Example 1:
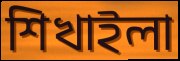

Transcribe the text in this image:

শিখাইলা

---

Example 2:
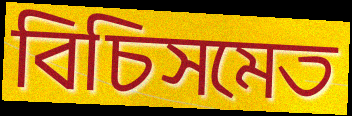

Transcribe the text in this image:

বিচিসমেত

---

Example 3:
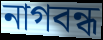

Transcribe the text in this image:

নাগবন্ধ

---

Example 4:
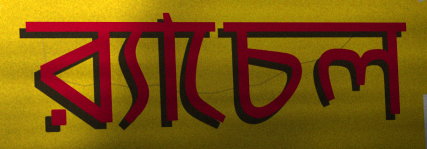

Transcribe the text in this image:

র‍্যাচেল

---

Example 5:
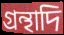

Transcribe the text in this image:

গ্রন্থাদি